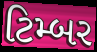
ટિમ્બર